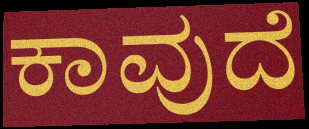
ಕಾವುದೆ